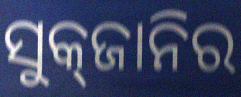
ସୁକ୍‌ଜାନିର